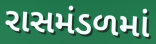
રાસમંડળમાં